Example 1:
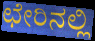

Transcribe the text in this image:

ಛೇರಿನಲ್ಲಿ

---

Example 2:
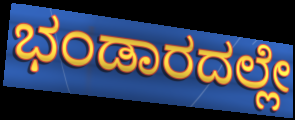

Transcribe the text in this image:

ಭಂಡಾರದಲ್ಲೇ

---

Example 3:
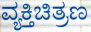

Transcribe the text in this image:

ವ್ಯಕ್ತಿಚಿತ್ರಣ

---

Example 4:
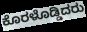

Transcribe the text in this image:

ಕೊರಳೊಡ್ಡಿದರು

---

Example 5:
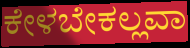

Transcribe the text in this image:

ಕೇಳಬೇಕಲ್ಲವಾ